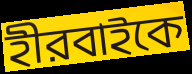
হীরবাইকে